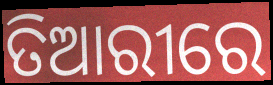
ତିଆରୀରେ